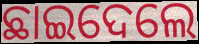
ଛାଇଦେଲେ